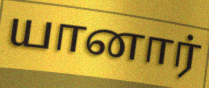
யானார்